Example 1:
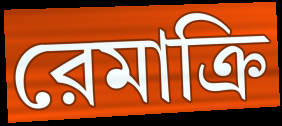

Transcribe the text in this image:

রেমাক্রি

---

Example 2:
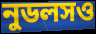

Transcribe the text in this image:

নুডলসও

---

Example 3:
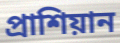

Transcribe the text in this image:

প্রাশিয়ান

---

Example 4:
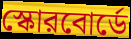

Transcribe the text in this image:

স্কোরবোর্ডে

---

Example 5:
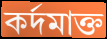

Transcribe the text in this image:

কর্দমাক্ত